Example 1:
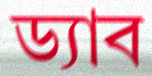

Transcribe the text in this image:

ড্যাব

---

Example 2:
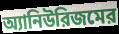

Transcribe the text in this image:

অ্যানিউরিজমের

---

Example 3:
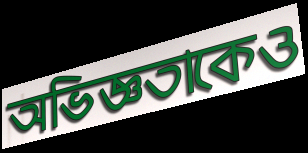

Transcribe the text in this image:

অভিজ্ঞতাকেও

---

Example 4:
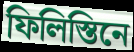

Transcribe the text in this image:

ফিলিস্তিনে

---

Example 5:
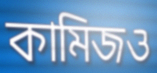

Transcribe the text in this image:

কামিজও